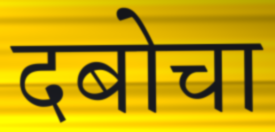
दबोचा